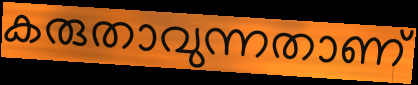
കരുതാവുന്നതാണ്